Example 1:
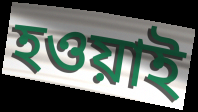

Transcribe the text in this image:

হওয়াই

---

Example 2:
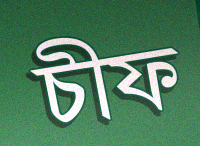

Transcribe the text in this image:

চীফ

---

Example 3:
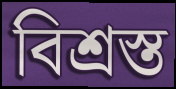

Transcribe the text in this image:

বিশ্রস্ত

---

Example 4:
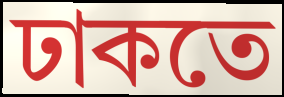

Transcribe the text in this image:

ঢাকতে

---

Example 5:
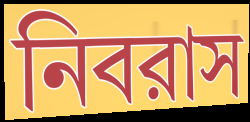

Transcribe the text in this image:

নিবরাস